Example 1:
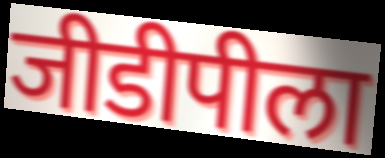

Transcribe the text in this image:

जीडीपीला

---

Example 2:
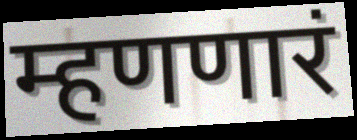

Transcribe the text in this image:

म्हणणारं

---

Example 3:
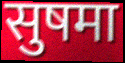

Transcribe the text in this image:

सुषमा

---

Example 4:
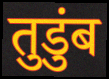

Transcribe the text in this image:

तुडुंब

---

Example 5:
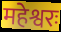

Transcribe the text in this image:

महेश्वरः